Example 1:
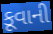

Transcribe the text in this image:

કૂવાની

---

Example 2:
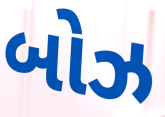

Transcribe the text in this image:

બોઝ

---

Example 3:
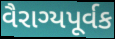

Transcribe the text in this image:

વૈરાગ્યપૂર્વક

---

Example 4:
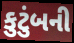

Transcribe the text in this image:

કુટુંબની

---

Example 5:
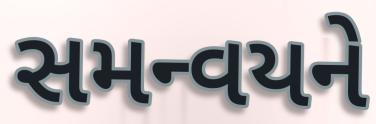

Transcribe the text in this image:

સમન્વયને